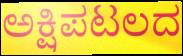
ಅಕ್ಷಿಪಟಲದ